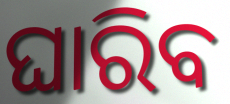
ଘାରିବ